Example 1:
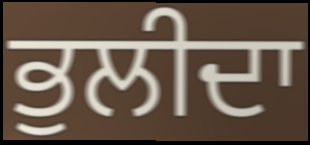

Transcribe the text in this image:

ਭੁਲੀਦਾ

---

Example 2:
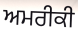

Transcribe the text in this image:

ਅਮਰੀਕੀ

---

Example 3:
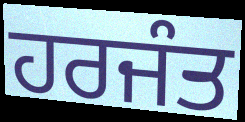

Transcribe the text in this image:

ਹਰਜੰਤ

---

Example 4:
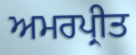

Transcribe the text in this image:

ਅਮਰਪ੍ਰੀਤ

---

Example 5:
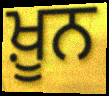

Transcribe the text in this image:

ਖ਼ੂਨ